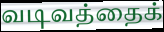
வடிவத்தைக்